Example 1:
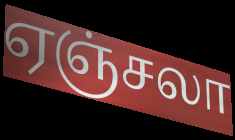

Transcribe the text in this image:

ஏஞ்சலா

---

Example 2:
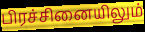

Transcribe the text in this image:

பிரச்சினையிலும்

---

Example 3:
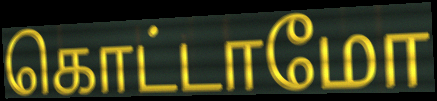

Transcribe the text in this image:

கொட்டாமோ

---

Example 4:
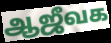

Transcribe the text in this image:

ஆஜீவக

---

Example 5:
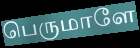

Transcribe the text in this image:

பெருமாளே